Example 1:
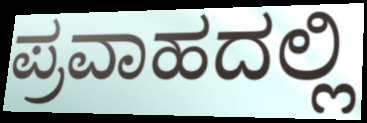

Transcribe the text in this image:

ಪ್ರವಾಹದಲ್ಲಿ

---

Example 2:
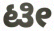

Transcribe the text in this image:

ಟೀ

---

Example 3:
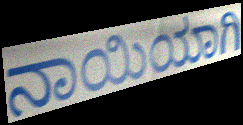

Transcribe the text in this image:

ನಾಯಿಯಾಗಿ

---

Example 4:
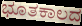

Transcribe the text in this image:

ಭೂತಕಾಲದ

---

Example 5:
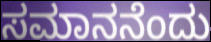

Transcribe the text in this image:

ಸಮಾನನೆಂದು